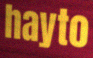
hayto